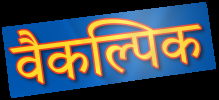
वैकल्पिक